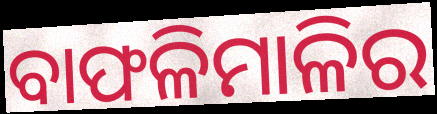
ବାଫଳିମାଳିର